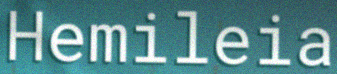
Hemileia